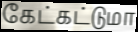
கேட்கட்டுமா